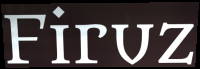
Firuz